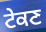
ਟੇਕਣ